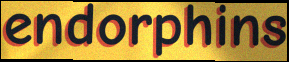
endorphins